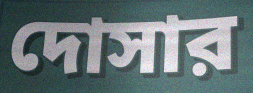
দোসার